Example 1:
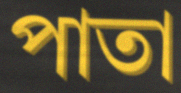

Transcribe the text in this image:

পাতা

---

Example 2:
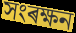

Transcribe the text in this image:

সংৰক্ষন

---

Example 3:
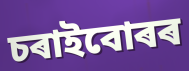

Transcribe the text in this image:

চৰাইবোৰৰ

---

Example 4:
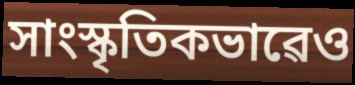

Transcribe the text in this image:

সাংস্কৃতিকভাৱেও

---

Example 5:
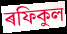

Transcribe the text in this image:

ৰফিকুল